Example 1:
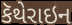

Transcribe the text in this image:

કૅથેરાઇન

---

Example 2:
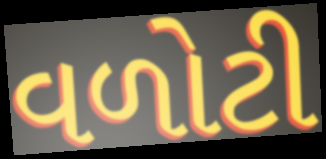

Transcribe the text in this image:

વળોટી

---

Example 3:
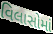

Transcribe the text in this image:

વિલાસોમાં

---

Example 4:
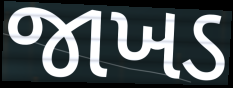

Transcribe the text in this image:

જાખડ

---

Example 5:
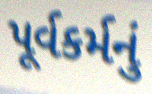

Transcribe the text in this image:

પૂર્વકર્મનું